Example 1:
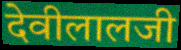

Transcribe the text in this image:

देवीलालजी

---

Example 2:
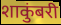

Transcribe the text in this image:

शाकुंबरी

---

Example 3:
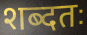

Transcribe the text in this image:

शब्दतः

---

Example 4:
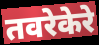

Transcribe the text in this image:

तवरेकेरे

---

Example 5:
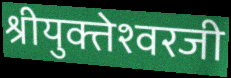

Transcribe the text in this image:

श्रीयुक्तेश्वरजी